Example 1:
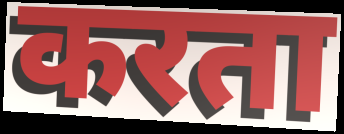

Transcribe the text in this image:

करता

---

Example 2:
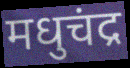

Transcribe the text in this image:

मधुचंद्र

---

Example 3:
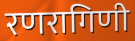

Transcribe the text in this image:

रणरागिणी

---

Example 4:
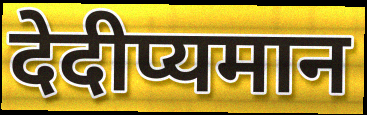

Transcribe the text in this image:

देदीप्यमान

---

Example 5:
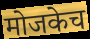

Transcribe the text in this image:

मोजकेच